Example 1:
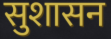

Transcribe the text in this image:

सुशासन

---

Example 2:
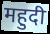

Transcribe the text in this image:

महुदी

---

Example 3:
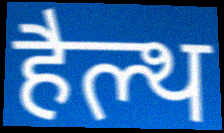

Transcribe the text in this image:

हैल्थ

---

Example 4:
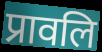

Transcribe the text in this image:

प्रावलि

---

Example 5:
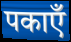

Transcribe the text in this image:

पकाएँ